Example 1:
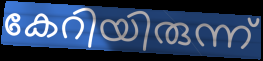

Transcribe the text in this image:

കേറിയിരുന്ന്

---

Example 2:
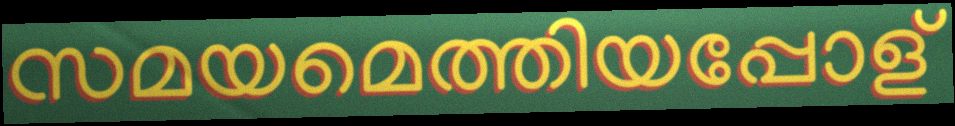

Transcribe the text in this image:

സമയമെത്തിയപ്പോള്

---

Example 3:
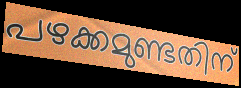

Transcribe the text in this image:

പഴക്കമുണ്ടതിന്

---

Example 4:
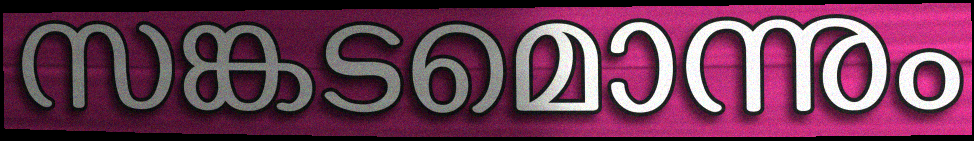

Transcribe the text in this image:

സങ്കടമൊന്നും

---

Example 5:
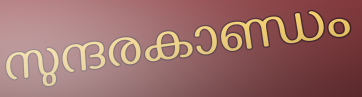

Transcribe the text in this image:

സുന്ദരകാണ്ഡം